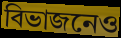
বিভাজনেও